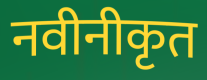
नवीनीकृत